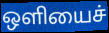
ஒளியைச்